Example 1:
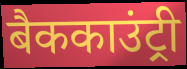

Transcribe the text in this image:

बैककाउंट्री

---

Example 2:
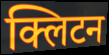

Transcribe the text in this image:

क्लिटन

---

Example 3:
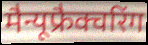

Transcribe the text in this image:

मैन्यूफ्रैक्चरिंग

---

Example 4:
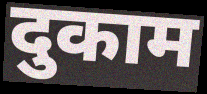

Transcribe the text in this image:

दुकाम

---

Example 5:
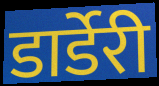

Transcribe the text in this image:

डार्डेरी